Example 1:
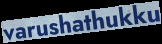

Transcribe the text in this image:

varushathukku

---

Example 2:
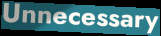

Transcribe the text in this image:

Unnecessary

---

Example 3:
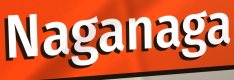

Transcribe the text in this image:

Naganaga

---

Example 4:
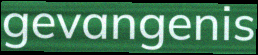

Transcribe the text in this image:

gevangenis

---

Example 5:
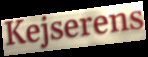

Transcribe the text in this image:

Kejserens